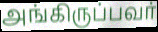
அங்கிருப்பவர்